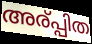
അര്പ്പിത